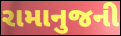
રામાનુજની